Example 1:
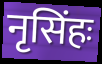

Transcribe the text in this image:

नृसिंहः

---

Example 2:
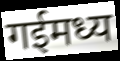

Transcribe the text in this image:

गईमध्य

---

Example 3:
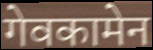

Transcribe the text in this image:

गेवकामेन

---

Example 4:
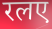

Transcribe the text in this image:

रलए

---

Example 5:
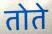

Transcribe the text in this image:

तोते